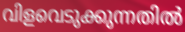
വിളവെടുക്കുന്നതിൽ